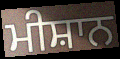
ਮੀਸ਼ਾਨ